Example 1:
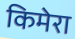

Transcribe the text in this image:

किमेरा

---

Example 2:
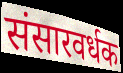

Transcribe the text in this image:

संसारवर्धक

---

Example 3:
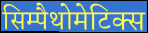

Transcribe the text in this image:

सिम्पैथोमेटिक्स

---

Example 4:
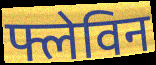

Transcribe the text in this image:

फ्लेविन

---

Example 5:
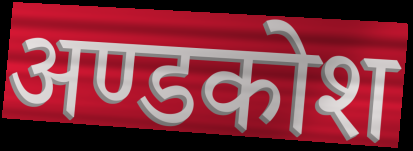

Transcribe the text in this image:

अण्डकोश